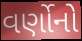
વર્ણોનો